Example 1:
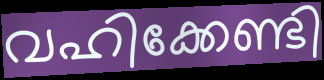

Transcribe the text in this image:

വഹിക്കേണ്ടി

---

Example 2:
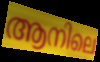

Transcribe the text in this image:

ആനിലെ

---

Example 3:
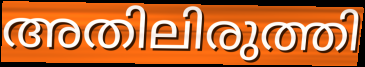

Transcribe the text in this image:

അതിലിരുത്തി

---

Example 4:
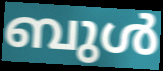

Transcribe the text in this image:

ബുൾ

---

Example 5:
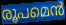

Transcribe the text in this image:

രൂപമെൻ